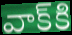
వాక్‌కి